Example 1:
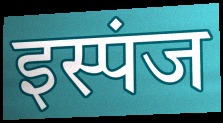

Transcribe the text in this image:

इस्पंज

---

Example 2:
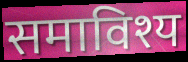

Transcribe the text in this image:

समाविश्य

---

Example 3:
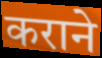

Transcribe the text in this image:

कराने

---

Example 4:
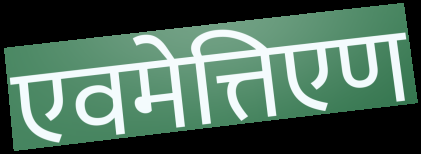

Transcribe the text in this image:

एवमेत्तिएण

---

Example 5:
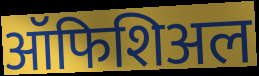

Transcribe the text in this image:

ऑफिशिअल